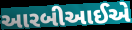
આરબીઆઈએ